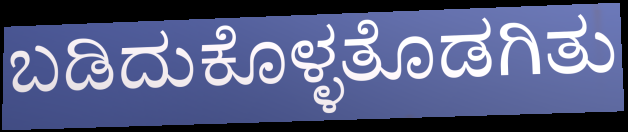
ಬಡಿದುಕೊಳ್ಳತೊಡಗಿತು